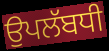
ਉਪਲੱਬਧੀ